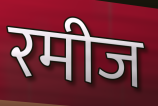
रमीज